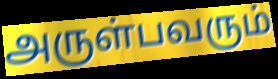
அருள்பவரும்